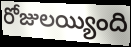
రోజులయ్యింది